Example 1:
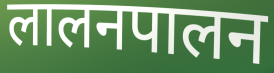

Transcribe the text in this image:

लालनपालन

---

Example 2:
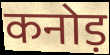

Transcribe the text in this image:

कनोड़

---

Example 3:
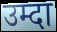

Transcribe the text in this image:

उम्दा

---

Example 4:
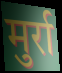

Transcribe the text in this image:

मुर्रा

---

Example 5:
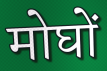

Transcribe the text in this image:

मोघों